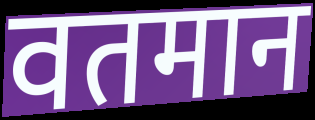
वतमान